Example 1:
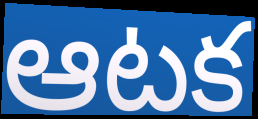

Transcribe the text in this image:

ఆటక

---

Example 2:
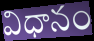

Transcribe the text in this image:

విధానం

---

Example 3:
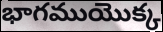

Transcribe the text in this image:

భాగముయొక్క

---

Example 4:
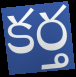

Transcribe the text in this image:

కర్త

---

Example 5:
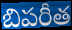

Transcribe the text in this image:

బిపరీత